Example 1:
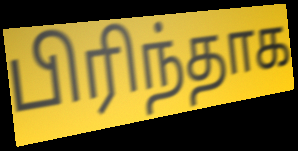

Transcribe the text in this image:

பிரிந்தாக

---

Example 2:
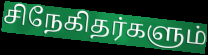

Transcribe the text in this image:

சிநேகிதர்களும்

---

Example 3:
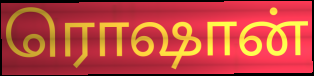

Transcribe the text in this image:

ரொஷான்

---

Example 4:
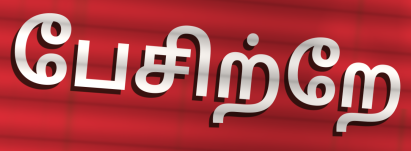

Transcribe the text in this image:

பேசிற்றே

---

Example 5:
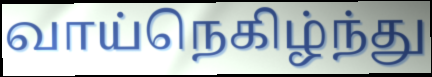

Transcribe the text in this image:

வாய்நெகிழ்ந்து